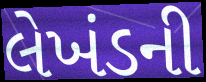
લેખંડની